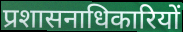
प्रशासनाधिकारियों